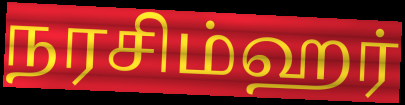
நரசிம்ஹர்